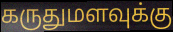
கருதுமளவுக்கு